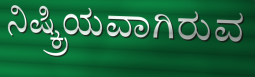
ನಿಷ್ಕ್ರಿಯವಾಗಿರುವ